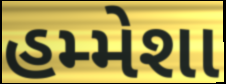
હમ્મેશા